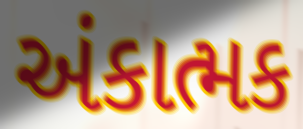
અંકાત્મક